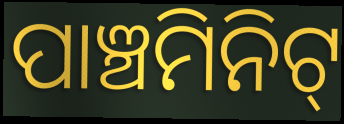
ପାଞ୍ଚମିନିଟ୍